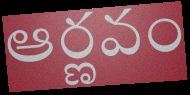
ఆర్ణవం